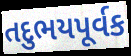
તદુભયપૂર્વક